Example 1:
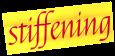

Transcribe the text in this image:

stiffening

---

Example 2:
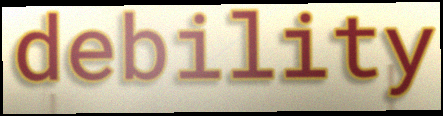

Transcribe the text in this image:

debility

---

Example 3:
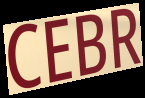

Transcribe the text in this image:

CEBR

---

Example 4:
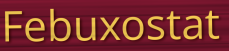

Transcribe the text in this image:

Febuxostat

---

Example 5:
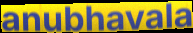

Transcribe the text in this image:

anubhavala